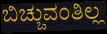
ಬಿಚ್ಚುವಂತಿಲ್ಲ